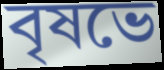
বৃষভে